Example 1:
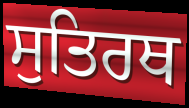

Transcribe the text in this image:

ਸੁਤਿਰਥ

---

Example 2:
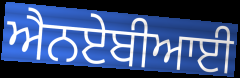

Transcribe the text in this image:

ਐਨਏਬੀਆਈ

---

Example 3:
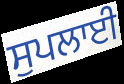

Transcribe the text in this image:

ਸੁਪਲਾਈ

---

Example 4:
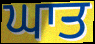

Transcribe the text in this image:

ਘਾਤ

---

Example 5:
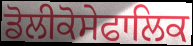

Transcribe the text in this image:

ਡੋਲੀਕੋਸੇਫਾਲਿਕ